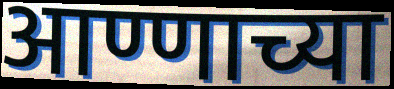
आण्णाच्या